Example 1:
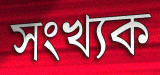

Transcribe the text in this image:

সংখ্যক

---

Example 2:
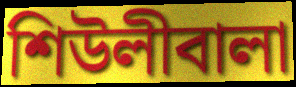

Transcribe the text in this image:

শিউলীবালা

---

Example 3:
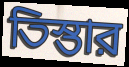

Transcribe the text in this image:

তিস্তার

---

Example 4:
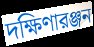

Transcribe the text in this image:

দক্ষিণারঞ্জন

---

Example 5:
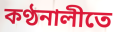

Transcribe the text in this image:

কণ্ঠনালীতে